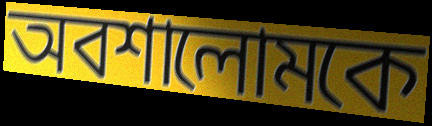
অবশালোমকে